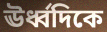
ঊর্ধ্বদিকে